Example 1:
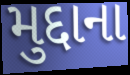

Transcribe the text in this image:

મુદ્દાના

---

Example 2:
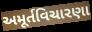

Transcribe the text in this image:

અમૂર્તવિચારણા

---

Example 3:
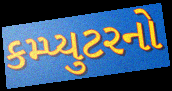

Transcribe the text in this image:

કમ્પ્યુટરનો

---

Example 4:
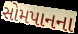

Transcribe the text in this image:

સોમપાનના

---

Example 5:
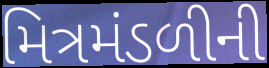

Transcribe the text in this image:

મિત્રમંડળીની